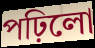
পঢ়িলো